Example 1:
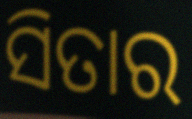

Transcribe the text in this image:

ସିତାର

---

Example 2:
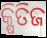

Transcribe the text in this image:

କ୍ଷିତିଜ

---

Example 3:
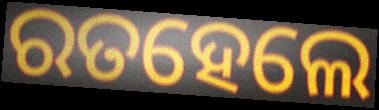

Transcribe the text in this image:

ରତହେଲେ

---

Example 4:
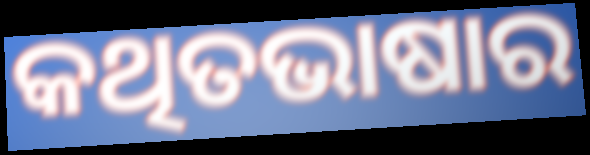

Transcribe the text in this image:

କଥିତଭାଷାର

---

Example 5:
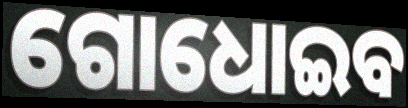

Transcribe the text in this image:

ଗୋଧୋଇବ